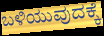
ಬಳಿಯುವುದಕ್ಕೆ